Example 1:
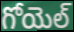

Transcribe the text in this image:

గోయెల్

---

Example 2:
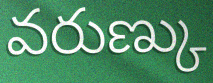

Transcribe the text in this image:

వరుణ్కు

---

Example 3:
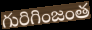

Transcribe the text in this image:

గురిగింజంత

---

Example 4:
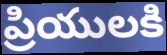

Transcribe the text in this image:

ప్రియులకి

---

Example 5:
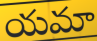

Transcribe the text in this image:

యమా